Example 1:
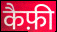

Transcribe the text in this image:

कैफ़ी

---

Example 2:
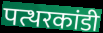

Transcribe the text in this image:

पत्थरकांडी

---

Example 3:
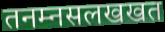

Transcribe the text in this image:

तनम्नसलखखत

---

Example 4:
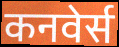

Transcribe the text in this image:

कनवेर्स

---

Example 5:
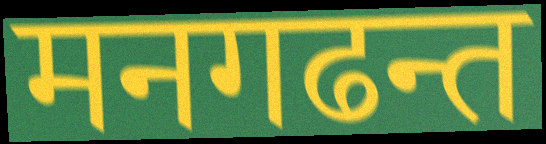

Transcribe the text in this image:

मनगढन्त